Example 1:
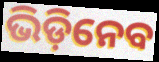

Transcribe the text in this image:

ଭିଡ଼ିନେବ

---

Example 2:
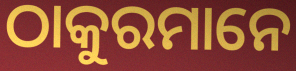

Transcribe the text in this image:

ଠାକୁରମାନେ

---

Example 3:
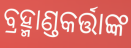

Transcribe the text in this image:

ବ୍ରହ୍ମାଣ୍ଡକର୍ତ୍ତାଙ୍କ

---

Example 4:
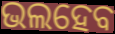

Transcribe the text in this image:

ଭଲହେବ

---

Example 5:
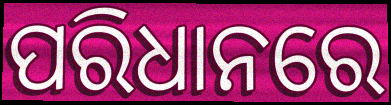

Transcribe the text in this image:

ପରିଧାନରେ